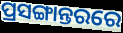
ପ୍ରସଙ୍ଗାନ୍ତରରେ